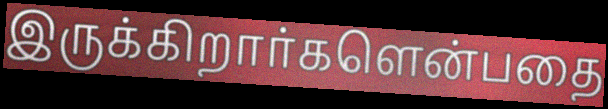
இருக்கிறார்களென்பதை